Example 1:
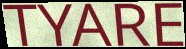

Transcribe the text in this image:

TYARE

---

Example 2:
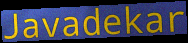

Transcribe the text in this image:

Javadekar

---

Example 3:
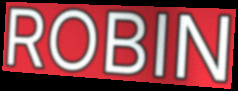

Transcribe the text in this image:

ROBIN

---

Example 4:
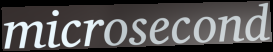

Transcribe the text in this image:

microsecond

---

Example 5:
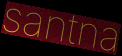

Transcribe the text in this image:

santna